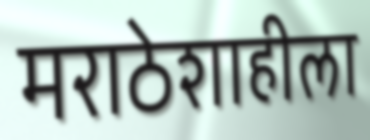
मराठेशाहीला